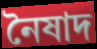
নৈষাদ